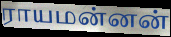
ராயமன்னன்